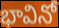
భావినో